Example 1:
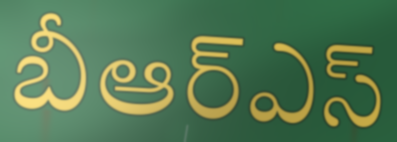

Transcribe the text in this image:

బీఆర్ఎస్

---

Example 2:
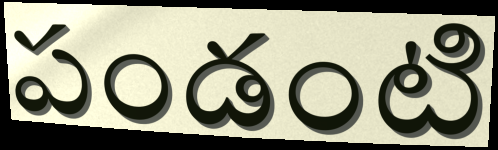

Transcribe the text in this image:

పండంటి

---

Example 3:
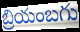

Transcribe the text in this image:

బ్రియంబగు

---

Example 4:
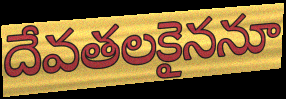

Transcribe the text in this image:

దేవతలకైననూ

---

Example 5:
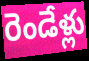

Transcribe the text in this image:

రెండేళ్లు